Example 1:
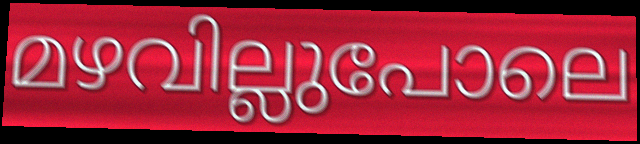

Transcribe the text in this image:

മഴവില്ലുപോലെ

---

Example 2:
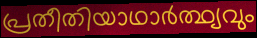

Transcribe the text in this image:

പ്രതീതിയാഥാർത്ഥ്യവും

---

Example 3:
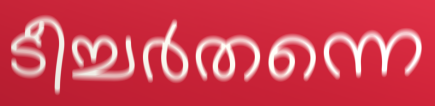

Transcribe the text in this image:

ടീച്ചർതന്നെ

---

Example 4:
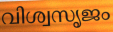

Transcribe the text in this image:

വിശ്വസൃജം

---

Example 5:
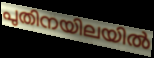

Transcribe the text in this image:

പുതിനയിലയിൽ